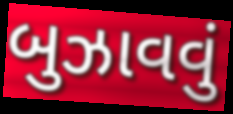
બુઝાવવું